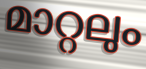
മാറ്റലും